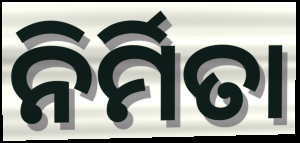
ନିର୍ମିତା